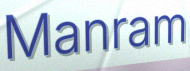
Manram